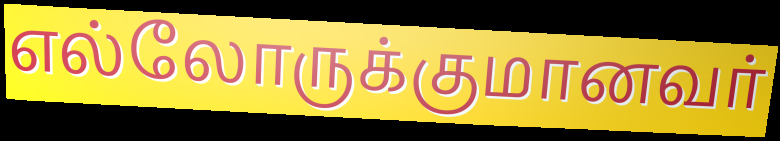
எல்லோருக்குமானவர்